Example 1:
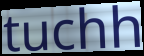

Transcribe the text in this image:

tuchh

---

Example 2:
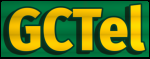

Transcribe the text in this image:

GCTel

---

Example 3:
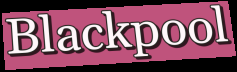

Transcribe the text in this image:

Blackpool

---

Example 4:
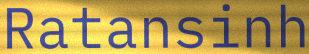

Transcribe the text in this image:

Ratansinh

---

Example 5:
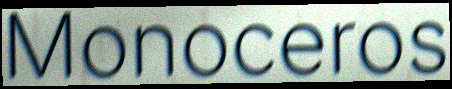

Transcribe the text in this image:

Monoceros